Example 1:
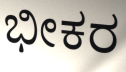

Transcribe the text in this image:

ಭೀಕರ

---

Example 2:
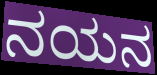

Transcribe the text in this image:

ನಯನ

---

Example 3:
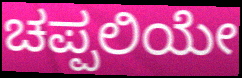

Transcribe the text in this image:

ಚಪ್ಪಲಿಯೇ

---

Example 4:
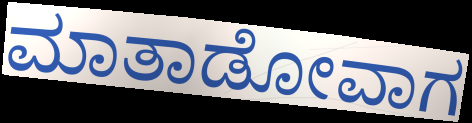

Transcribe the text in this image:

ಮಾತಾಡೋವಾಗ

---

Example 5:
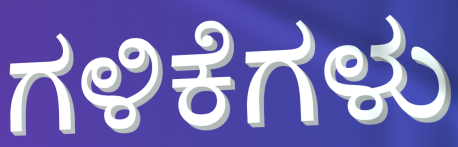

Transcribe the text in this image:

ಗಳಿಕೆಗಳು